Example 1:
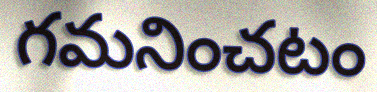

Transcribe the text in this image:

గమనించటం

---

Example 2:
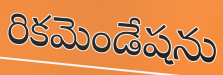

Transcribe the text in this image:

రికమెండేషను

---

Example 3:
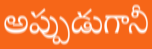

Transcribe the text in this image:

అప్పుడుగానీ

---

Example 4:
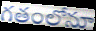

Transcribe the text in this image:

గతంలోనూ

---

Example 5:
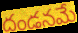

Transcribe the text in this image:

దండనమే